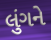
લુંગને